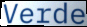
Verde